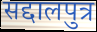
सद्दालपुत्र